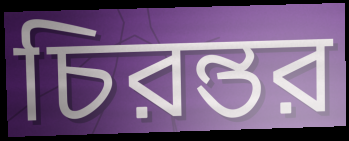
চিরন্তর